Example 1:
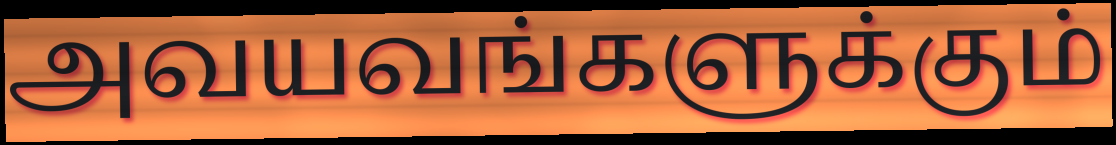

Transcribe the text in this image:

அவயவங்களுக்கும்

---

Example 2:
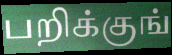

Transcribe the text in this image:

பறிக்குங்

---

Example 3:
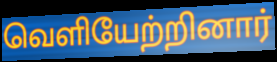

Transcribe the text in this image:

வெளியேற்றினார்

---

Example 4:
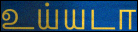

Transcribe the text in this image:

உய்யடா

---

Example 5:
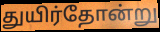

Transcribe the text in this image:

துயிர்தோன்று